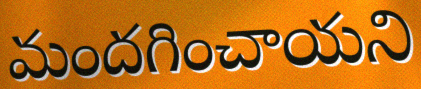
మందగించాయని